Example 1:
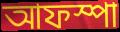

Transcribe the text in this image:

আফস্পা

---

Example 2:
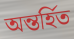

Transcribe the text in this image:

অন্তর্হিত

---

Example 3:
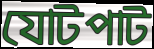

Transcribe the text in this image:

যোটপাট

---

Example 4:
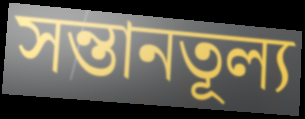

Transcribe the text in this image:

সন্তানতূল্য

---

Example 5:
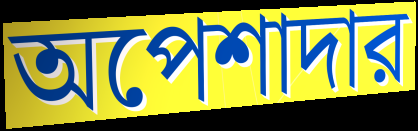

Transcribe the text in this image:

অপেশাদার